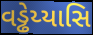
વડ્ઢેય્યાસિ